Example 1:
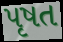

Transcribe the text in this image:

પૃષત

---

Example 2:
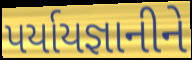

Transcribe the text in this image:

પર્યાયજ્ઞાનીને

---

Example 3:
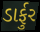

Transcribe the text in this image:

ડાર્ફુર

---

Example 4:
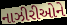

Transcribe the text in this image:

નાઝીરીઓને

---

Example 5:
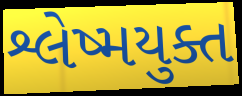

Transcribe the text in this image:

શ્લેષ્મયુક્ત